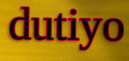
dutiyo